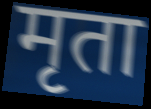
मृता